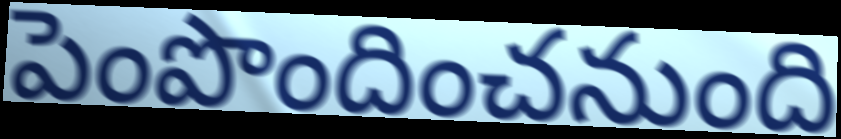
పెంపొందించనుంది